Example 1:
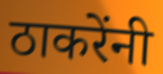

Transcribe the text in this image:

ठाकरेंनी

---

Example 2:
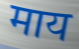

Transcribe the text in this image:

माय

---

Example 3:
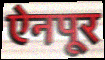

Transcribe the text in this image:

ऐनपूर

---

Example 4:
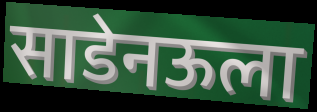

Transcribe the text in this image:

साडेनऊला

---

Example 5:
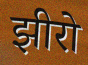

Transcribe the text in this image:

झीरो